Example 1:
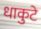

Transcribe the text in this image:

धाकुटे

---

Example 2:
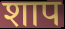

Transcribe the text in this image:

शाप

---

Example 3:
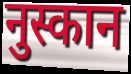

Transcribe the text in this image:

नुस्कान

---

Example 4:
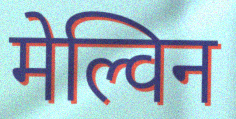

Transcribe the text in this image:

मेल्विन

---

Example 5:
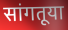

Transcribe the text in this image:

सांगतूया